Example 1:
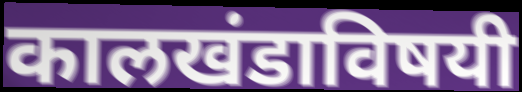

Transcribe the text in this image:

कालखंडाविषयी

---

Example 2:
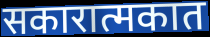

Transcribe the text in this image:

सकारात्मकात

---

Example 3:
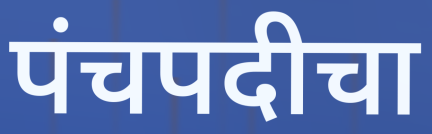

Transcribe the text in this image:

पंचपदीचा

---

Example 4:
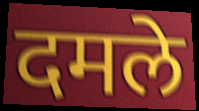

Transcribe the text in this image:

दमले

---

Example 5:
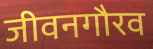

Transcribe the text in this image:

जीवनगौरव